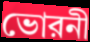
ভোরনী